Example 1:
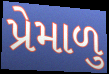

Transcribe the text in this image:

પ્રેમાળુ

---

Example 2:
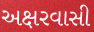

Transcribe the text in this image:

અક્ષરવાસી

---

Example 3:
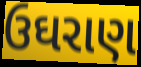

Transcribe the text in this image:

ઉઘરાણ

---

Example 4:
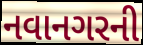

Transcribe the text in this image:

નવાનગરની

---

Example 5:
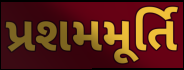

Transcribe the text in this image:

પ્રશમમૂર્તિ